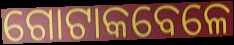
ଗୋଟାକବେଳେ